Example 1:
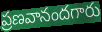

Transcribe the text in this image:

ప్రణవానందగారు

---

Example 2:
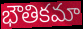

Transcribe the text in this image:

భౌతికమా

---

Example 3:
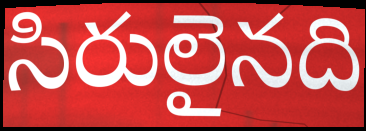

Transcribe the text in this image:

సిరులైనది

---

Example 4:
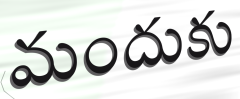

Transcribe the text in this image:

మందుకు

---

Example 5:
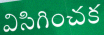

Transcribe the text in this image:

విసిగించక